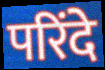
परिंदे